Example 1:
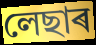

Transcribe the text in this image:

লেছাৰ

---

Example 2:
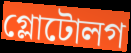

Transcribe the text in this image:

গ্লোটোলগ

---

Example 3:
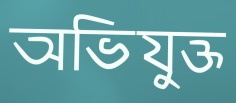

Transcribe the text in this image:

অভিযুক্ত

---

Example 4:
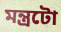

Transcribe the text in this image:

মন্ত্ৰটো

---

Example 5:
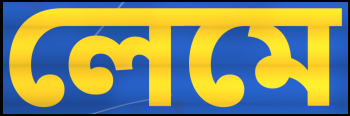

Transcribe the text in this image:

লেমে